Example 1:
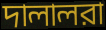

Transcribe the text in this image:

দালালরা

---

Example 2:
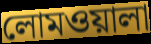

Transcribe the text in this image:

লোমওয়ালা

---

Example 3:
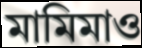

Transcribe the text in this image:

মামিমাও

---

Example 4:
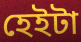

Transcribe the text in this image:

হেইটা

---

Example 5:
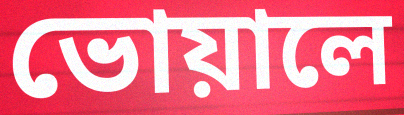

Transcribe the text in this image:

ভোয়ালে